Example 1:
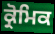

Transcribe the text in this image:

ਕ੍ਰੋਮਿਕ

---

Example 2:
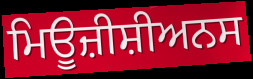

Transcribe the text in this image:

ਮਿਊਜ਼ੀਸ਼ੀਅਨਸ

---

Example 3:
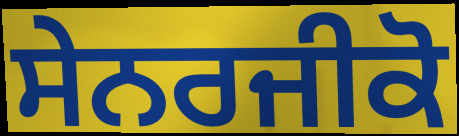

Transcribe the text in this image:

ਸੇਨਰਜੀਕੋ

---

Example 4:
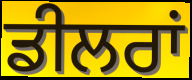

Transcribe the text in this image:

ਡੀਲਰਾਂ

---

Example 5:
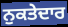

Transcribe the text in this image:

ਨੁਕਤੇਦਾਰ